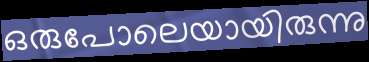
ഒരുപോലെയായിരുന്നു